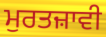
ਮੁਰਤਜ਼ਾਵੀ